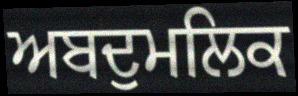
ਅਬਦੁਮਲਿਕ